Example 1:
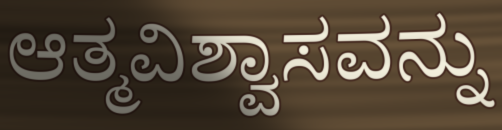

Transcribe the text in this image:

ಆತ್ಮವಿಶ್ವಾಸವನ್ನು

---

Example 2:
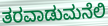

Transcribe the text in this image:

ತರವಾಡುಮನೆಲಿ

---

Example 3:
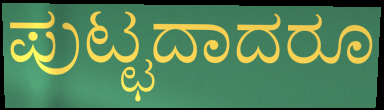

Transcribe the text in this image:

ಪುಟ್ಟದಾದರೂ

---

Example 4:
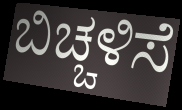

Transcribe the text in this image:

ಬಿಚ್ಚಳಿಸೆ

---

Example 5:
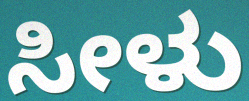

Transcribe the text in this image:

ಸೀಳು